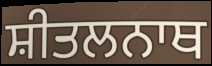
ਸ਼ੀਤਲਨਾਥ